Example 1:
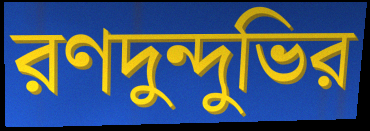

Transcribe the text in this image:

রণদুন্দুভির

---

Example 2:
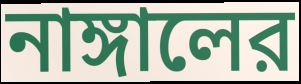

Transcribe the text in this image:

নাঙ্গালের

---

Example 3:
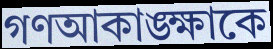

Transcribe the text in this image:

গণআকাঙ্ক্ষাকে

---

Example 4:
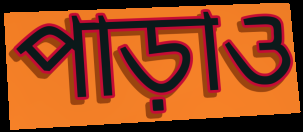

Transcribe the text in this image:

পাড়াও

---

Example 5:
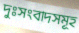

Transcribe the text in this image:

দুঃসংবাদসমূহ